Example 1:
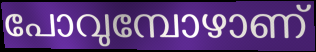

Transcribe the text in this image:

പോവുമ്പോഴാണ്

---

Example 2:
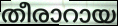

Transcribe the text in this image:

തീരാറായ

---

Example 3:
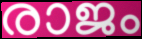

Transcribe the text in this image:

രാജം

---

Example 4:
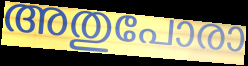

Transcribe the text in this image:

അതുപോരാ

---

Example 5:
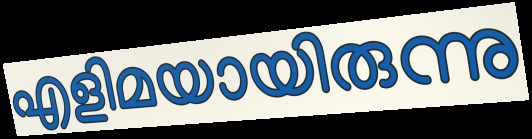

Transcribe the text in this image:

എളിമയായിരുന്നു